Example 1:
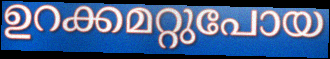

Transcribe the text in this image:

ഉറക്കമറ്റുപോയ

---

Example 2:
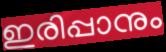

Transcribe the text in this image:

ഇരിപ്പാനും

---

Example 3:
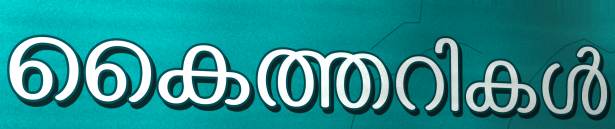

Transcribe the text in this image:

കൈത്തറികൾ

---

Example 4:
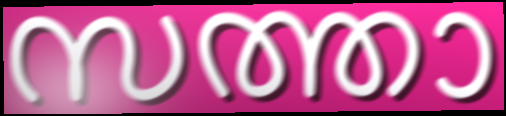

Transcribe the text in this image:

സത്താ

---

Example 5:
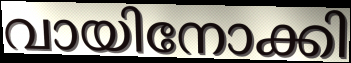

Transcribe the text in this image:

വായിനോക്കി